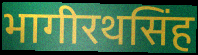
भागीरथसिंह